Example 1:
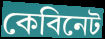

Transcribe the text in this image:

কেবিনেট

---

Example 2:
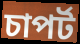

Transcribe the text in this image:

চাপৰ্ট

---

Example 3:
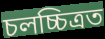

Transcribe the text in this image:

চলচ্চিত্ৰত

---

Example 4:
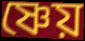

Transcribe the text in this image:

ষ্ণেয়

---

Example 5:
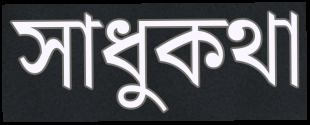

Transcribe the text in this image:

সাধুকথা